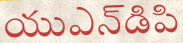
యుఎన్‌డిపి